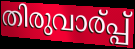
തിരുവാര്പ്പ്